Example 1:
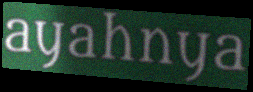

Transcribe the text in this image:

ayahnya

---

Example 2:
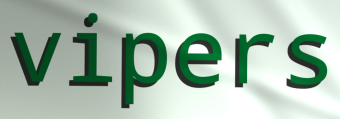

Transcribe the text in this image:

vipers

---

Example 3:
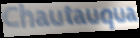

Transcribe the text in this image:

Chautauqua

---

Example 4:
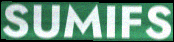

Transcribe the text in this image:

SUMIFS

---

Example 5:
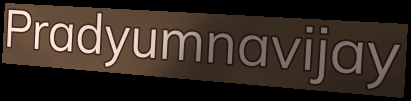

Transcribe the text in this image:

Pradyumnavijay